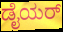
ಡೈಯರ್